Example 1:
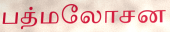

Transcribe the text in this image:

பத்மலோசன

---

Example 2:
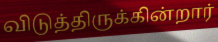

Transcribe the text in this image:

விடுத்திருக்கின்றார்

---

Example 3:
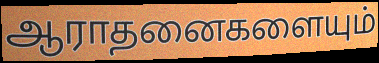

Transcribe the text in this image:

ஆராதனைகளையும்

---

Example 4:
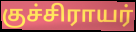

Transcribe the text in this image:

குச்சிராயர்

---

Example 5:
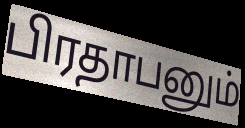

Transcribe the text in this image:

பிரதாபனும்